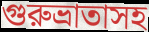
গুরুভ্রাতাসহ